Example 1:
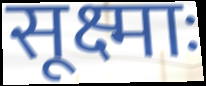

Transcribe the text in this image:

सूक्ष्माः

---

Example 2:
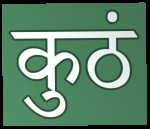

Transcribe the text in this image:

कुठं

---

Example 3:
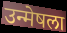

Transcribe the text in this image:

उन्मेषला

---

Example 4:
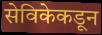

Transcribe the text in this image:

सेविकेकडून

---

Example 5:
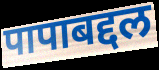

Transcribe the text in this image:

पापाबद्दल